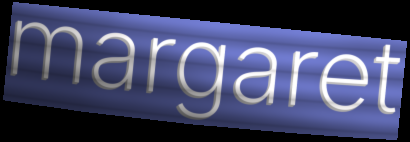
margaret